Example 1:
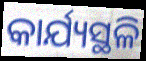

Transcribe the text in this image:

କାର୍ଯ୍ୟସ୍ଥଳି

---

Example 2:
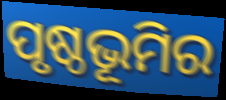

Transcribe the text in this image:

ପୃଷ୍ଠଭୂମିର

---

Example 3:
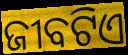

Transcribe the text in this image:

ଜୀବଟିଏ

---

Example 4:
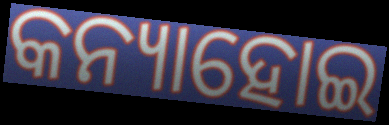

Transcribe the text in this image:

କନ୍ୟାହୋଇ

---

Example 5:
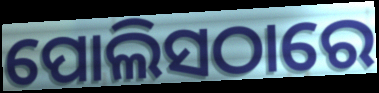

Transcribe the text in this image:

ପୋଲିସଠାରେ